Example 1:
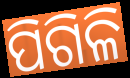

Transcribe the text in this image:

ପିଗିଳି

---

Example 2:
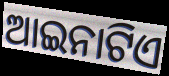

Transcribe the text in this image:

ଆଇନାଟିଏ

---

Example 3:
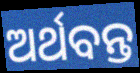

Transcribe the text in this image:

ଅର୍ଥବନ୍ତ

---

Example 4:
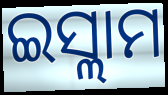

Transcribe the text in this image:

ଇସ୍ଲାମ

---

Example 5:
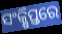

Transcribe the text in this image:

ସଂକ୍ଷିପ୍ତରେ